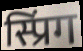
स्प्रिंग